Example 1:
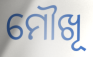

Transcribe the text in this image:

ମୌଖୂ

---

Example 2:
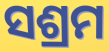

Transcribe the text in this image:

ସଶ୍ରମ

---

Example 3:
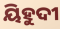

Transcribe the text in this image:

ୟିହୁଦୀ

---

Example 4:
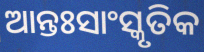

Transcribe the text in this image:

ଆନ୍ତଃସାଂସ୍କୃତିକ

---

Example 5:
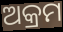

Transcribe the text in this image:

ଅକ୍ରମ